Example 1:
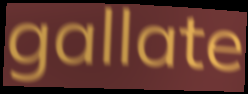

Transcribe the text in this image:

gallate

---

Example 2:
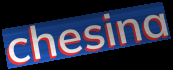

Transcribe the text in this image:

chesina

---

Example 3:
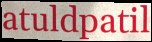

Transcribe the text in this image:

atuldpatil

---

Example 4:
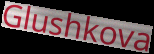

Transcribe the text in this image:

Glushkova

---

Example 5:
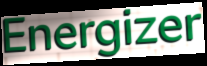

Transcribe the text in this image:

Energizer